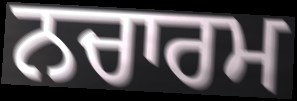
ਨਚਾਰਮ